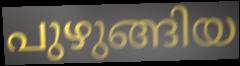
പുഴുങ്ങിയ